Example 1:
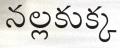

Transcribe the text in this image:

నల్లకుక్క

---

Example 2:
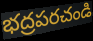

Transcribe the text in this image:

భద్రపరచండి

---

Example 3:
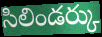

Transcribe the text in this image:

సిలిండర్కు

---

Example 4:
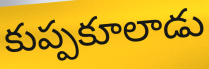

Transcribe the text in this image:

కుప్పకూలాడు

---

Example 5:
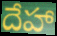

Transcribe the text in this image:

దేహా